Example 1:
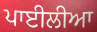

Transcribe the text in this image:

ਪਾਈਲੀਆ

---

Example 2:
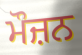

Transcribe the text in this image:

ਮੌਜ਼ਨ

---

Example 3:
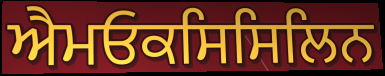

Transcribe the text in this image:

ਐਮਓਕਸਿਸਿਲਿਨ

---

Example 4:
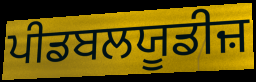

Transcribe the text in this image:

ਪੀਡਬਲਯੂਡੀਜ਼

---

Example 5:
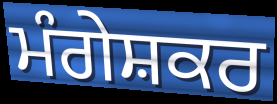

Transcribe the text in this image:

ਮੰਗੇਸ਼ਕਰ